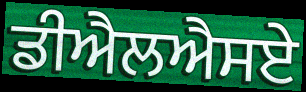
ਡੀਐਲਐਸਏ